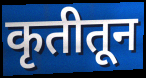
कृतीतून